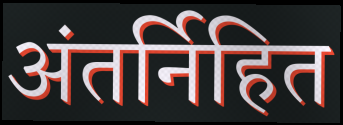
अंतर्निहित